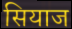
सियाज